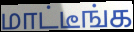
மாட்டீங்க